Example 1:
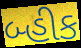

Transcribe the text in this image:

બ્હીક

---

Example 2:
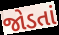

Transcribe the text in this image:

જોડતાં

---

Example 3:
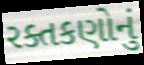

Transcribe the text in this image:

રક્તકણોનું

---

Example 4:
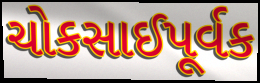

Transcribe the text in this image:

ચોકસાઈપૂર્વક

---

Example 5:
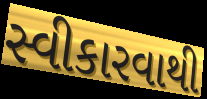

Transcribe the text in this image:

સ્વીકારવાથી